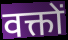
वक्तों